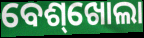
ବେଶ୍‌ଖୋଲା